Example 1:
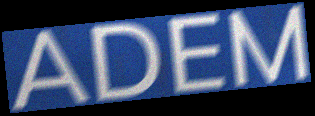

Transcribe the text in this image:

ADEM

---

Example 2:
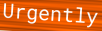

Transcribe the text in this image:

Urgently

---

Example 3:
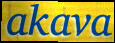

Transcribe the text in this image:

akava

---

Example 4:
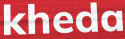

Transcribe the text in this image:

kheda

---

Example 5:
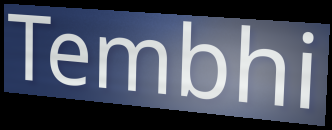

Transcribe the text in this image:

Tembhi